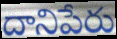
దానిపేరు